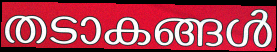
തടാകങ്ങൾ